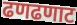
ढणढणाट